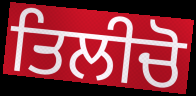
ਤਿਲੀਚੋ